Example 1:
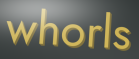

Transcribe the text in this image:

whorls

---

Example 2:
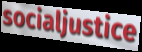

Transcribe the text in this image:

socialjustice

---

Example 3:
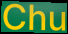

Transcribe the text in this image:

Chu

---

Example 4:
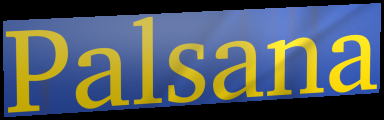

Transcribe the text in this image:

Palsana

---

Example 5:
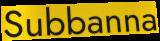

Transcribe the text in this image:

Subbanna